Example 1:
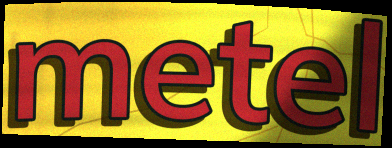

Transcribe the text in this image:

metel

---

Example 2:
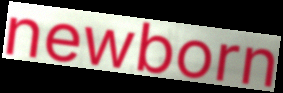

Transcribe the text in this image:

newborn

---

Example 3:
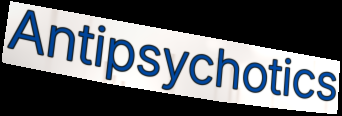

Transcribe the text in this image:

Antipsychotics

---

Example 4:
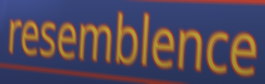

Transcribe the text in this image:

resemblence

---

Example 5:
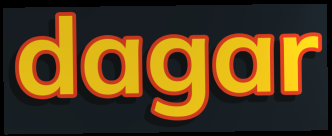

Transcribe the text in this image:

dagar